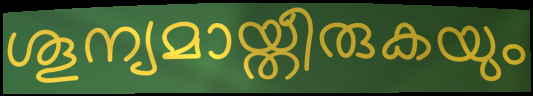
ശൂന്യമായ്തീരുകയും